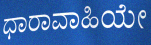
ಧಾರಾವಾಹಿಯೇ